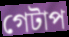
গেটাপ